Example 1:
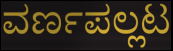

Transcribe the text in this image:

ವರ್ಣಪಲ್ಲಟ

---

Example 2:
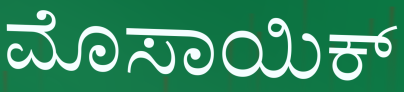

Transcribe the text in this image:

ಮೊಸಾಯಿಕ್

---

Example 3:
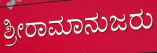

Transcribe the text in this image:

ಶ್ರೀರಾಮಾನುಜರು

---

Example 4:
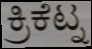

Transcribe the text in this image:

ಕ್ರಿಕೆಟ್ನ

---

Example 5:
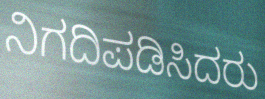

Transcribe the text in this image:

ನಿಗದಿಪಡಿಸಿದರು